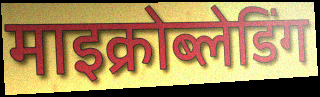
माइक्रोब्लेडिंग